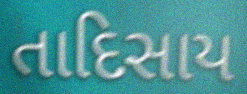
તાદિસાય